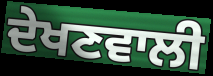
ਦੇਖਣਵਾਲੀ